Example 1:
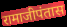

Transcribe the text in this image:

रामाजीपंतास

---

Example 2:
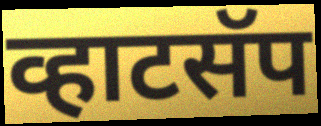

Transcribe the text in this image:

व्हाटसॅप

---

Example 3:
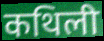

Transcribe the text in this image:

कथिली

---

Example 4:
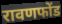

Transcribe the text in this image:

रावणफोंड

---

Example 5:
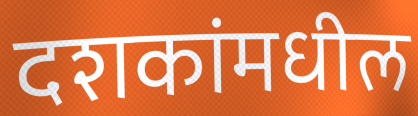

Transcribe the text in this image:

दशकांमधील